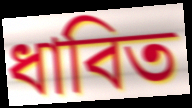
ধাবিত